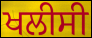
ਖਲੀਸੀ